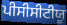
ਪੀਸੀਸੀਟੀਯੂ